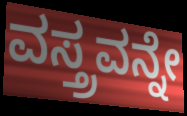
ವಸ್ತ್ರವನ್ನೇ